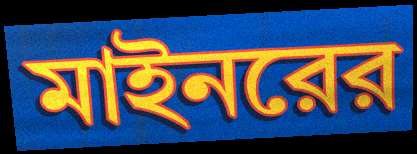
মাইনরের